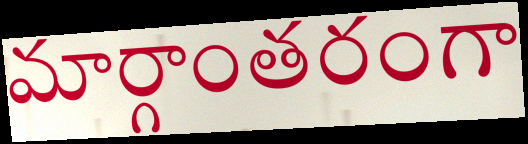
మార్గాంతరంగా